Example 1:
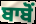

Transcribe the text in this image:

ਬਾਬੋਂ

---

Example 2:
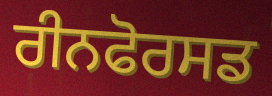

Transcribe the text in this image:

ਰੀਨਫੋਰਸਡ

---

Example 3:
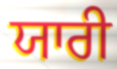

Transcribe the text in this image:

ਯਾਰੀ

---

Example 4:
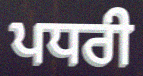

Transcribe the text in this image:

ਪਧਰੀ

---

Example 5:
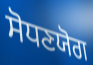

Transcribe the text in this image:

ਸੋਧਣਯੋਗ